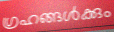
ഗ്രഹങ്ങൾക്കും